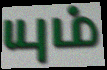
யும்